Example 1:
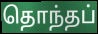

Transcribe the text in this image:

தொந்தப்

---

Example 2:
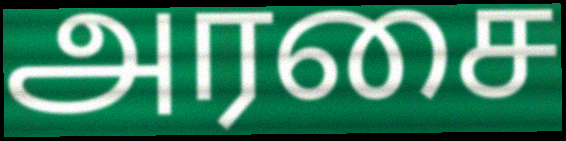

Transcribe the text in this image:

அரசை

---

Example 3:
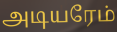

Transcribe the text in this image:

அடியரேம்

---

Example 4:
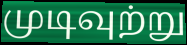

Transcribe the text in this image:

முடிவுற்று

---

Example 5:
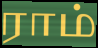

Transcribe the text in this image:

ராம்